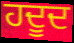
ਹਦੂਦ